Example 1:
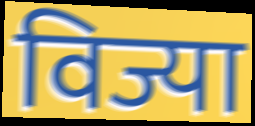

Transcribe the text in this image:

विज्या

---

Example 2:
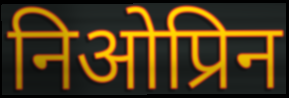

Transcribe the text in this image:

निओप्रिन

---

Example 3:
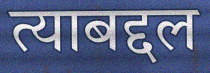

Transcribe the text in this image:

त्याबद्दल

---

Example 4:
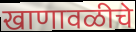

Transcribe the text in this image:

खाणावळीचे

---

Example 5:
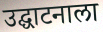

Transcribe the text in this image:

उद्घाटनाला